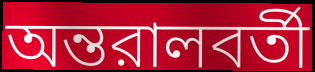
অন্তরালবর্তী